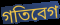
গতিবেগ